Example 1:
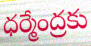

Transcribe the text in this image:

ధర్మేంద్రకు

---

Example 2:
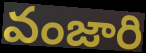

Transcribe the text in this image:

వంజారి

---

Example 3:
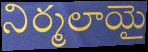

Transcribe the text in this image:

నిర్మలాయై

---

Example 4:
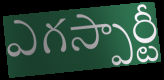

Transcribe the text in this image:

ఎగస్పార్టీ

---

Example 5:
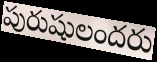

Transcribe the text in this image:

పురుషులందరు